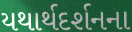
યથાર્થદર્શનના